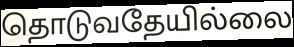
தொடுவதேயில்லை